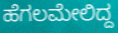
ಹೆಗಲಮೇಲಿದ್ದ